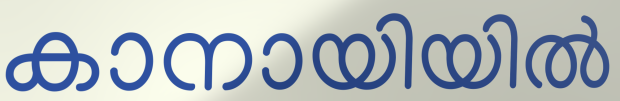
കാനായിയിൽ